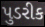
પુડરીક